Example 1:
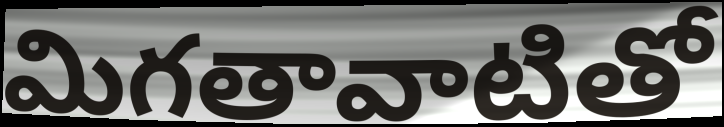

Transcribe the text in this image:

మిగతావాటితో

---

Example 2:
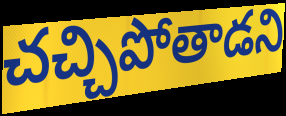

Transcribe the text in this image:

చచ్చిపోతాడని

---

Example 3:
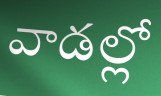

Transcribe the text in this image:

వాడల్లో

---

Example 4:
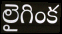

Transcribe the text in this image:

లైగింక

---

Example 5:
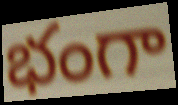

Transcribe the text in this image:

భంగా